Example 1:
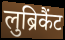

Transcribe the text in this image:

लुब्रिकैंट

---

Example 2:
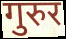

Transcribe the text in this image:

गुरुर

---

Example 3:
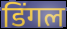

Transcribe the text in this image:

डिंगल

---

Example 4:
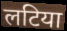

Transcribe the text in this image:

लटिया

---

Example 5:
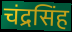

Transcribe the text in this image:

चंद्रसिंह